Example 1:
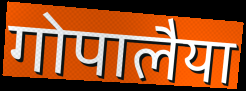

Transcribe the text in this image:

गोपालैया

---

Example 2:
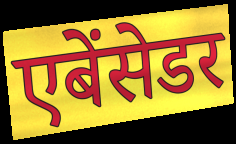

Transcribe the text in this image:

एबेंसेडर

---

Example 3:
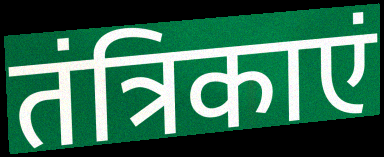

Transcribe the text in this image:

तंत्रिकाएं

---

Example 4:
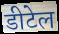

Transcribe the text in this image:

डीटेल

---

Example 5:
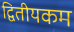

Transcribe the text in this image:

द्वितीयकम